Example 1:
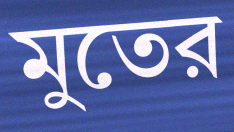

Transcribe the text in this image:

মুতের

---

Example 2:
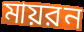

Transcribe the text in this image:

মায়রন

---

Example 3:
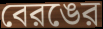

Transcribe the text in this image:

বেরঙের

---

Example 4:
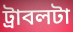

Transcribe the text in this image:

ট্রাবলটা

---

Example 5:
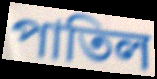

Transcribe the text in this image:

পাতিল